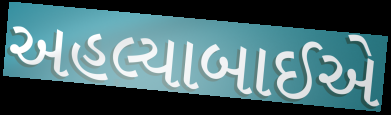
અહલ્યાબાઈએ